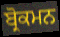
ਬ੍ਰੋਕਮਨ